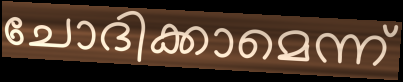
ചോദിക്കാമെന്ന്